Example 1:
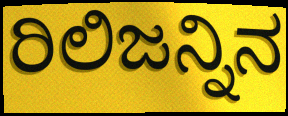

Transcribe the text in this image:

ರಿಲಿಜನ್ನಿನ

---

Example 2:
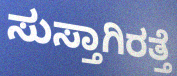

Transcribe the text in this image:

ಸುಸ್ತಾಗಿರತ್ತೆ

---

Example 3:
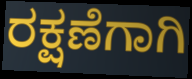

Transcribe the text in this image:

ರಕ್ಷಣೆಗಾಗಿ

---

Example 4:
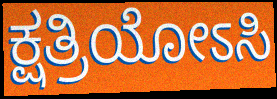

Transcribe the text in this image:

ಕ್ಷತ್ರಿಯೋಽಸಿ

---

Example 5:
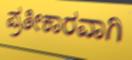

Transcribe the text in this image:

ಪ್ರತೀಕಾರವಾಗಿ